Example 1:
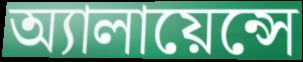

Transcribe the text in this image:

অ্যালায়েন্সে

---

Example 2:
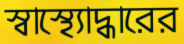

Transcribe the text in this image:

স্বাস্থ্যোদ্ধারের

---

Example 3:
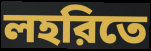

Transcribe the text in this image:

লহরিতে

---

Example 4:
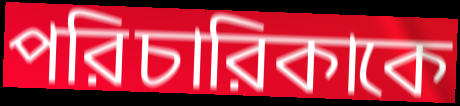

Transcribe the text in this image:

পরিচারিকাকে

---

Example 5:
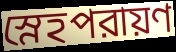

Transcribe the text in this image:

স্নেহপরায়ণ